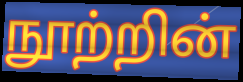
நூற்றின்